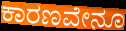
ಕಾರಣವೇನೂ